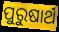
ପୁରୁଷାର୍ଥ